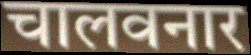
चालवनार